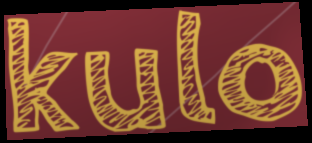
kulo